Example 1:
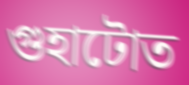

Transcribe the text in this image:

গুহাটোত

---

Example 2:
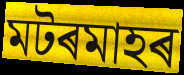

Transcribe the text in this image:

মটৰমাহৰ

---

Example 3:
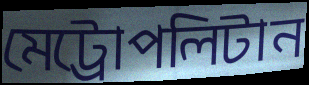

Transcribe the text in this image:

মেট্ৰোপলিটান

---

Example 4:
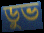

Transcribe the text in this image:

ডুভ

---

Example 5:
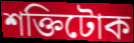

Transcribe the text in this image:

শক্তিটোক